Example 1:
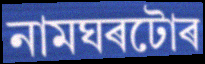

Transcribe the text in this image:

নামঘৰটোৰ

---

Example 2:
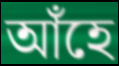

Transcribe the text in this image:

আঁহে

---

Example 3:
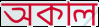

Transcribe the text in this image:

অকাল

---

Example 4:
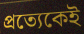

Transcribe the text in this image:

প্ৰত্যেকেই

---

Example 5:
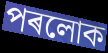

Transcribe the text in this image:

পৰলোক